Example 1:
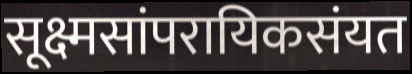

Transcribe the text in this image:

सूक्ष्मसांपरायिकसंयत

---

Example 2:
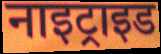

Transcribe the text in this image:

नाइट्राइड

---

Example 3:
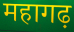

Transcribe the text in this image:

महागढ़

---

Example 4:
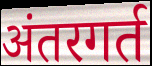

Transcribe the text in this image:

अंतरगर्त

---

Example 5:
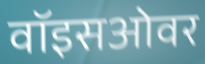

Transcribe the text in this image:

वॉइसओवर